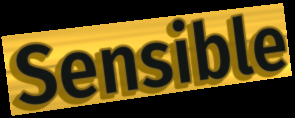
Sensible